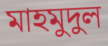
মাহমুদুল